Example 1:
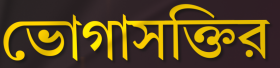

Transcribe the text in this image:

ভোগাসক্তির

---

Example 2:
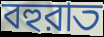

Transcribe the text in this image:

বহুরাত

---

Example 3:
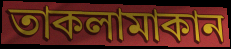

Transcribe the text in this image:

তাকলামাকান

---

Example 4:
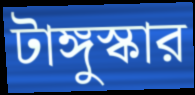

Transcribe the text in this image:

টাঙ্গুস্কার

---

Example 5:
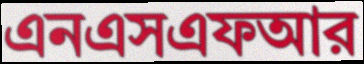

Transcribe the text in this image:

এনএসএফআর